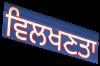
ਵਿਲਖਣਤਾ